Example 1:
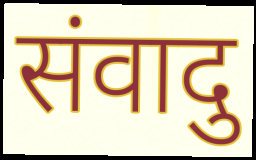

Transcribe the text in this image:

संवादु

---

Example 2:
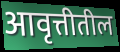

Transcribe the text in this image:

आवृत्तीतील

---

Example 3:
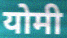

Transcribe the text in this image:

योमी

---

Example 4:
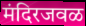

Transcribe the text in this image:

मंदिरजवळ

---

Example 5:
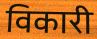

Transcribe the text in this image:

विकारी